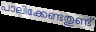
പാലിക്കേണ്ടതുണ്ട്